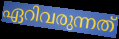
ഏറിവരുന്നത്